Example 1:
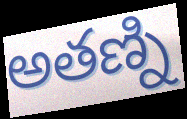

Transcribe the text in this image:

అతణ్ని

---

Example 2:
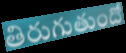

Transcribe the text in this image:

తిరుగుతుందో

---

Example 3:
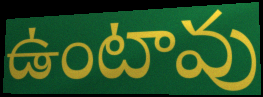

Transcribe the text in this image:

ఉంటావు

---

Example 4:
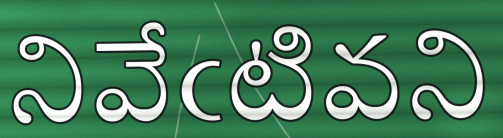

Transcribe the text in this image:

నివేఁటివని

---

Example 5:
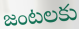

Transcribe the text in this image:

జంటలకు